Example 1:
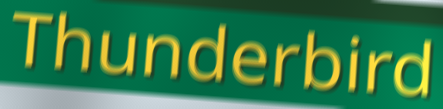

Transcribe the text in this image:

Thunderbird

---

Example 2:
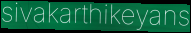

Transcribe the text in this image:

sivakarthikeyans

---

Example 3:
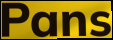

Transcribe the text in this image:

Pans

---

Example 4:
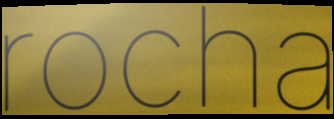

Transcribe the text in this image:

rocha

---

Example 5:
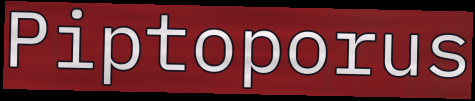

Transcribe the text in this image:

Piptoporus